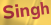
Singh